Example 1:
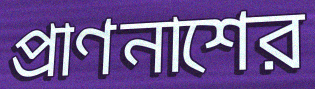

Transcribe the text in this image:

প্রাণনাশের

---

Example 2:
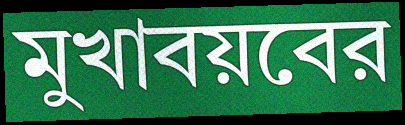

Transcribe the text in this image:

মুখাবয়বের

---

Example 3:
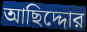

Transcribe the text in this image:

আছিদ্দোর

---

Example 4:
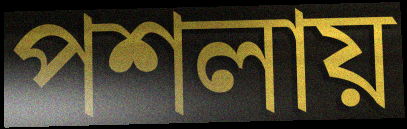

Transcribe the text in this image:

পশলায়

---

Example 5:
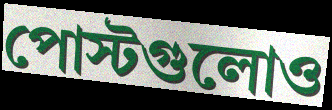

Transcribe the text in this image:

পোস্টগুলোও